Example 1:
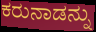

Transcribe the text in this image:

ಕರುನಾಡನ್ನು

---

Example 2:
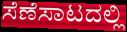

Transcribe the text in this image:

ಸೆಣೆಸಾಟದಲ್ಲಿ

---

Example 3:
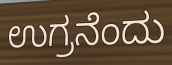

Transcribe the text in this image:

ಉಗ್ರನೆಂದು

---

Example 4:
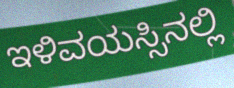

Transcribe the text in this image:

ಇಳಿವಯಸ್ಸಿನಲ್ಲಿ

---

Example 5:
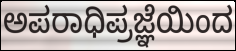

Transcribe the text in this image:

ಅಪರಾಧಿಪ್ರಜ್ಞೆಯಿಂದ